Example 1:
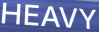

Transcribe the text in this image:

HEAVY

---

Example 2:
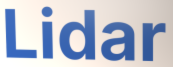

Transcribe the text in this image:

Lidar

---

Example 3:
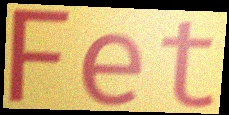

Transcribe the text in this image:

Fet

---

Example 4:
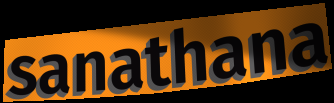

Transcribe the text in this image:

sanathana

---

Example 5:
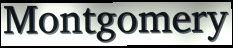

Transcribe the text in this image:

Montgomery